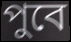
পুবে